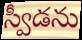
స్వీడను